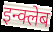
इन्क्लेब